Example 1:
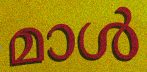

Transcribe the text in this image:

മാൾ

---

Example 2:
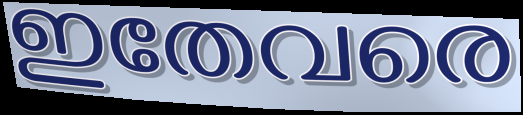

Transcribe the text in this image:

ഇതേവരെ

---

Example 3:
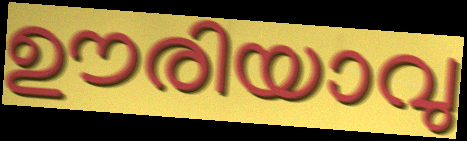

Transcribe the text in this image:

ഊരിയാവു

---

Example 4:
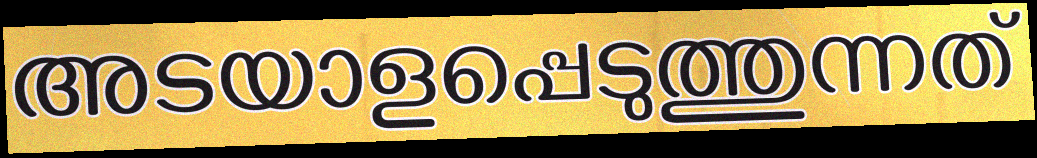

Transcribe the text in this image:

അടയാളപ്പെടുത്തുന്നത്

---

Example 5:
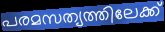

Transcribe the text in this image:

പരമസത്യത്തിലേക്ക്